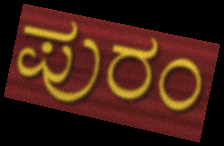
ಪುರಂ